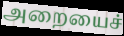
அறையைச்